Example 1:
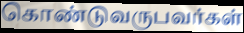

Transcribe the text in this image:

கொண்டுவருபவர்கள்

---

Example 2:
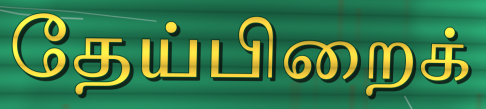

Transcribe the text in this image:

தேய்பிறைக்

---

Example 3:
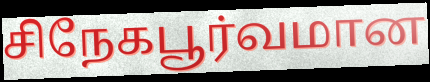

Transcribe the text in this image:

சிநேகபூர்வமான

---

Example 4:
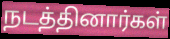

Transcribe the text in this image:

நடத்தினார்கள்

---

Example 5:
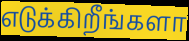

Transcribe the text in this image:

எடுக்கிறீங்களா